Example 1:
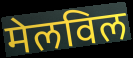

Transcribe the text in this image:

मेलविल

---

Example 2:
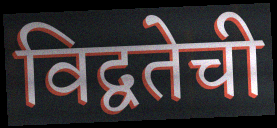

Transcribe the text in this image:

विद्वतेची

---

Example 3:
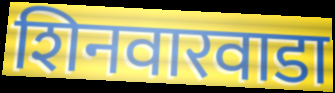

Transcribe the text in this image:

शिनवारवाडा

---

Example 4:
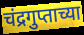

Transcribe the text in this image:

चंद्रगुप्ताच्या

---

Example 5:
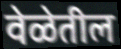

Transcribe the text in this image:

वेळेतील